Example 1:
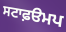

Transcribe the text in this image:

ਸਟਾਫ਼ੳਮਪ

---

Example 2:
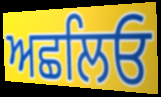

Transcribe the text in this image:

ਅਛਲਿਓ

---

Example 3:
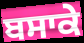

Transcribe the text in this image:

ਬਸਾਕੇ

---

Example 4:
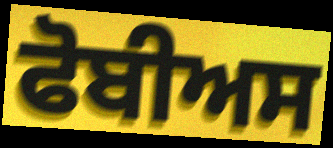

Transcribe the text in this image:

ਫੋਬੀਅਸ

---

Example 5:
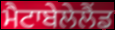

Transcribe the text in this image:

ਮੈਟਾਬੇਲੇਲੈਂਡ